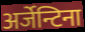
अर्जेन्टिना